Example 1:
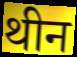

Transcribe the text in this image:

थीन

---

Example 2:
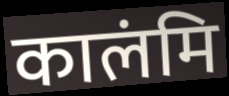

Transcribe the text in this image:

कालंमि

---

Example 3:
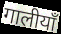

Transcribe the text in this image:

गालीयाँ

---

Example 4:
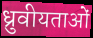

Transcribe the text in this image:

ध्रुवीयताओं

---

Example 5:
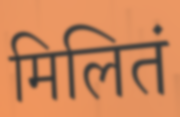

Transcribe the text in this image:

मिलितं